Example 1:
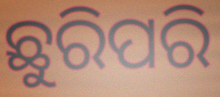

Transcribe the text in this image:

ଛୁରିପରି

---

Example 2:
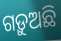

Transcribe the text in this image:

ଗଡ଼ୁଅଛି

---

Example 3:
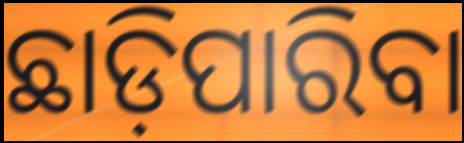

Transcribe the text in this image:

ଛାଡ଼ିପାରିବା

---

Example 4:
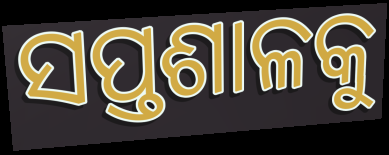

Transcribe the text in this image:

ସପ୍ତଶାଳକୁ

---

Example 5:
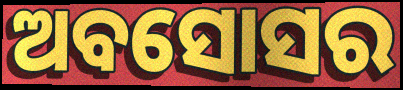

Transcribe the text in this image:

ଅବସୋସର